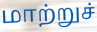
மாற்றுச்